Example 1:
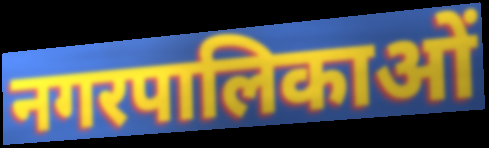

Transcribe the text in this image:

नगरपालिकाओं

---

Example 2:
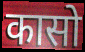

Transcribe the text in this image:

कासो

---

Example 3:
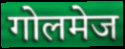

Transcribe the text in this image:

गोलमेज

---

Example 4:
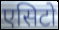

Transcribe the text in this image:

एसिटो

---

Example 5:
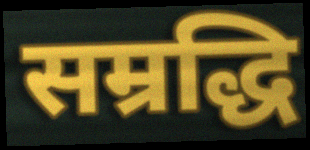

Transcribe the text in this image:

सम्रद्धि